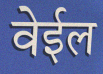
वेईल